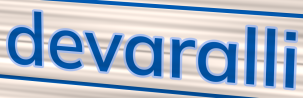
devaralli